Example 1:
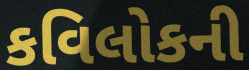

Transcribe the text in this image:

કવિલોકની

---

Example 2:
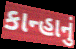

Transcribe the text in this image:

કાન્હાનું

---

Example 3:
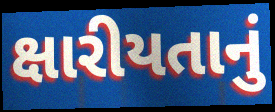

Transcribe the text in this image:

ક્ષારીયતાનું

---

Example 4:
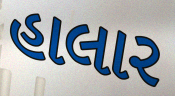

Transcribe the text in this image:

હાલાર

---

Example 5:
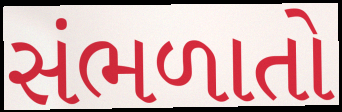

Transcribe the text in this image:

સંભળાતો